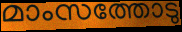
മാംസത്തോടു